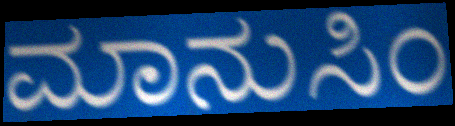
ಮಾನುಸಿಂ